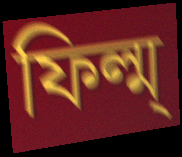
ফিল্ম্